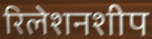
रिलेशनशीप